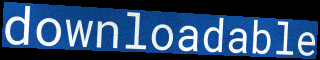
downloadable